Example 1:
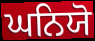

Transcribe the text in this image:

ਘਨਿਯੋ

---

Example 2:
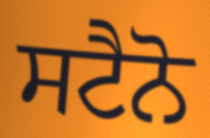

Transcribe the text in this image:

ਸਟੈਨੋ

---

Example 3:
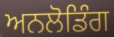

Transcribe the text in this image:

ਅਨਲੋਡਿੰਗ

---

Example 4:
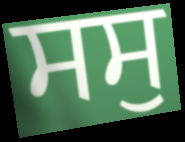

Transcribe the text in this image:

ਸਸੁ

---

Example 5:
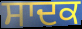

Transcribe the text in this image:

ਸਾਦਕ